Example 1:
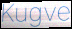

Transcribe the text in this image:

Kugve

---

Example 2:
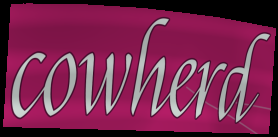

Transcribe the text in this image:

cowherd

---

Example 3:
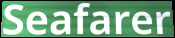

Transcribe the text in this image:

Seafarer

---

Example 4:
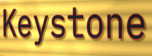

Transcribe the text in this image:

Keystone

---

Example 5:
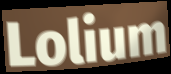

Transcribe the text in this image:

Lolium